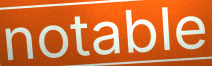
notable